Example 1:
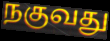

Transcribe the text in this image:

நகுவது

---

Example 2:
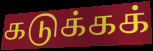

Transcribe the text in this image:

கடுக்கக்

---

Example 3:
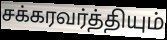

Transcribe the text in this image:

சக்கரவர்த்தியும்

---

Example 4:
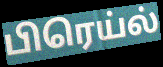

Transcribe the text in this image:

பிரெய்ல்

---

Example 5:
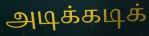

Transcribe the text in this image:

அடிக்கடிக்